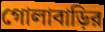
গোলাবাড়ির